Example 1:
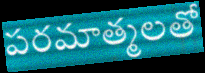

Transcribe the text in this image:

పరమాత్మలతో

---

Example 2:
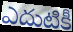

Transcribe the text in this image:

ఎదుటికీ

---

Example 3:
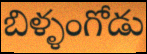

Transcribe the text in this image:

బిళ్ళంగోడు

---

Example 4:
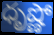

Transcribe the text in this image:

ధృష్ణో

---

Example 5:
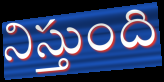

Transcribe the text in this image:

నిస్తుంది